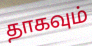
தாகவும்